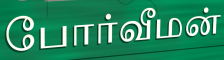
போர்வீமன்